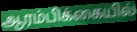
ஆரம்பிக்கையில்